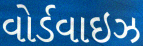
વોર્ડવાઇઝ